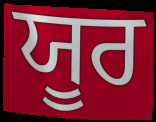
ਯੂਰ